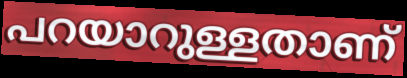
പറയാറുള്ളതാണ്